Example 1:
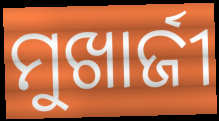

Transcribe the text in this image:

ମୁଖାର୍ଜୀ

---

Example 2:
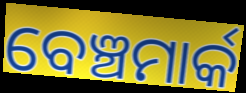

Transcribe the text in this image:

ବେଞ୍ଚମାର୍କ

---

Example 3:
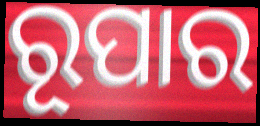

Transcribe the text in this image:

ରୂପାର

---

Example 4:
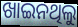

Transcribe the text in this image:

ଖାଇନଥିଲୁ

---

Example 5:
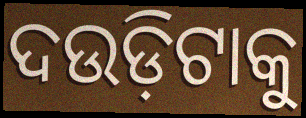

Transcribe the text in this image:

ଦଉଡ଼ିଟାକୁ